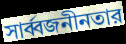
সার্ব্বজনীনতার